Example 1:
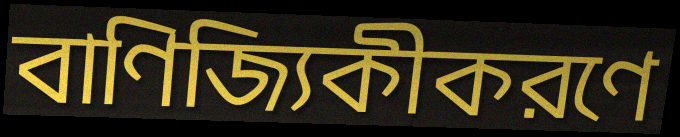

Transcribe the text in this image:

বাণিজ্যিকীকরণে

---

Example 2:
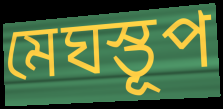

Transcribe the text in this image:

মেঘস্তূপ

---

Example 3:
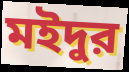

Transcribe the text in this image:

মইদুর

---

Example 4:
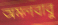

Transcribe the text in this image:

অমলবাবু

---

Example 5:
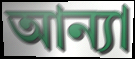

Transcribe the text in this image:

আন্যা